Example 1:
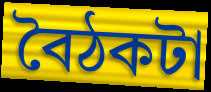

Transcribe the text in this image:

বৈঠকটা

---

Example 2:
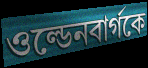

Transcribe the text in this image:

ওল্ডেনবার্গকে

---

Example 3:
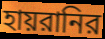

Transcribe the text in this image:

হায়রানির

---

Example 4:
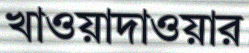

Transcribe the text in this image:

খাওয়াদাওয়ার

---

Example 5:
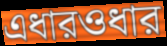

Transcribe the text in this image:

এধারওধার